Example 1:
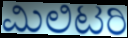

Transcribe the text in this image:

ಮಿಲಿಟರಿ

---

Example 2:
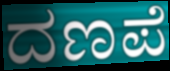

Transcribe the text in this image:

ದಣಪೆ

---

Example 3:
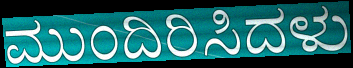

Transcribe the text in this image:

ಮುಂದಿರಿಸಿದಳು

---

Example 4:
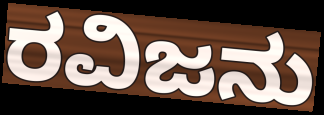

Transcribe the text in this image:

ರವಿಜನು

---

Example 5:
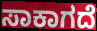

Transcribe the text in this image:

ಸಾಕಾಗದೆ